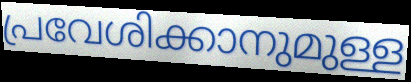
പ്രവേശിക്കാനുമുള്ള